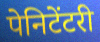
पेनिटेंटरी